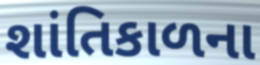
શાંતિકાળના